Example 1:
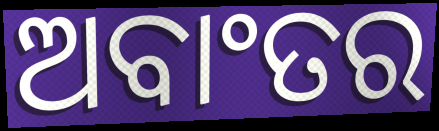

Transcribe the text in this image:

ଅବାଂତର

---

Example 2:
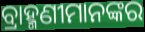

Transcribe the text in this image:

ବ୍ରାହ୍ମଣୀମାନଙ୍କର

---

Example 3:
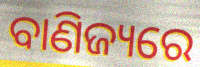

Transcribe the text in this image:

ବାଣିଜ୍ୟରେ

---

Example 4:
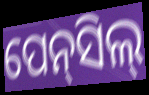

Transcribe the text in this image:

ପେନ୍‌ସିଲ୍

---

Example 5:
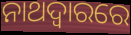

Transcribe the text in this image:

ନାଥଦ୍ୱାରରେ